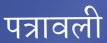
पत्रावली